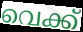
വെക്ക്